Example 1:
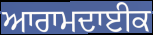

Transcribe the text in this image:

ਆਰਾਮਦਾਈਕ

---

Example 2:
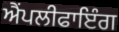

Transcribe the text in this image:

ਐਂਪਲੀਫਾਇੰਗ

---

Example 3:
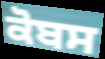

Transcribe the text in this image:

ਕੋਬਸ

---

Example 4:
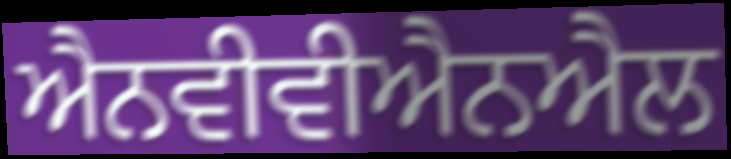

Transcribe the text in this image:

ਐਨਵੀਵੀਐਨਐਲ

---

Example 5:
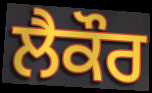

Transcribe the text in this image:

ਲੈਕੌਰ